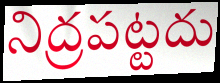
నిద్రపట్టదు